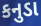
કનુડા